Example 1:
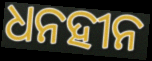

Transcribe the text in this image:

ଧନହୀନ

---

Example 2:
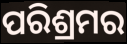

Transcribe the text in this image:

ପରିଶ୍ରମର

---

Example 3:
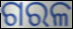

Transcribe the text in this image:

ଗରଳ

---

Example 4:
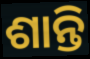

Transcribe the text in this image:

ଶାନ୍ତି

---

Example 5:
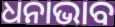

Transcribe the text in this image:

ଧନାଭାବ